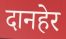
दानहेर